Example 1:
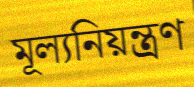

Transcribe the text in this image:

মূল্যনিয়ন্ত্রণ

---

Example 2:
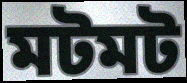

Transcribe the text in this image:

মটমট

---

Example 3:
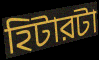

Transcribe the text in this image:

হিটারটা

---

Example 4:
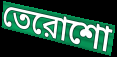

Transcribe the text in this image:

তেরোশো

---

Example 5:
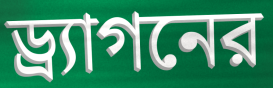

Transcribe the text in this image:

ড্র্যাগনের